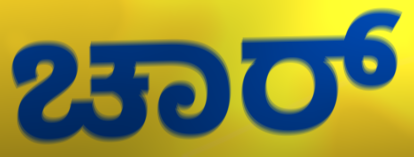
ಚಾರ್